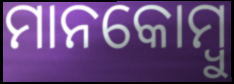
ମାନକୋମ୍ବୁ